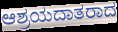
ಆಶ್ರಯದಾತರಾದ